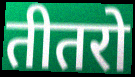
तीतरो